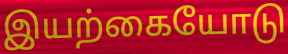
இயற்கையோடு